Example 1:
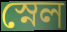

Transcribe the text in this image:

স্নেল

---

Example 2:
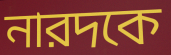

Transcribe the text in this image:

নারদকে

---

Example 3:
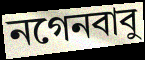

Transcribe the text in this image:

নগেনবাবু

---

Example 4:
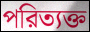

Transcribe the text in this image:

পরিত্যক্ত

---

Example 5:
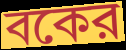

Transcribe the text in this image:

বকের